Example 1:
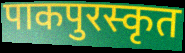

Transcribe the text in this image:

पाकपुरस्कृत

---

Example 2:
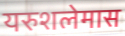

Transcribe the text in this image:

यरुशलेमास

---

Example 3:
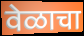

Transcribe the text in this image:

वेळाचा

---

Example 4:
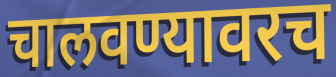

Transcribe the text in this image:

चालवण्यावरच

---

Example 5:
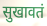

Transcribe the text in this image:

सुखावतं